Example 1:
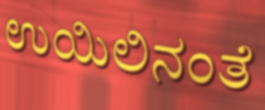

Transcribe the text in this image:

ಉಯಿಲಿನಂತೆ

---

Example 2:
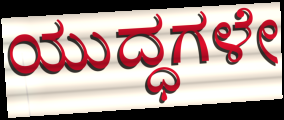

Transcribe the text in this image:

ಯುದ್ಧಗಳೇ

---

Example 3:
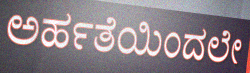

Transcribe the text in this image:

ಅರ್ಹತೆಯಿಂದಲೇ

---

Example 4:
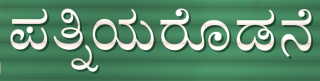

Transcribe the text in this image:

ಪತ್ನಿಯರೊಡನೆ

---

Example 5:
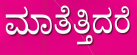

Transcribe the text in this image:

ಮಾತೆತ್ತಿದರೆ